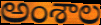
అంశాల